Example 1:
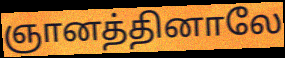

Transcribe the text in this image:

ஞானத்தினாலே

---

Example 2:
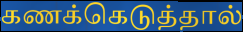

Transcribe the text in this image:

கணக்கெடுத்தால்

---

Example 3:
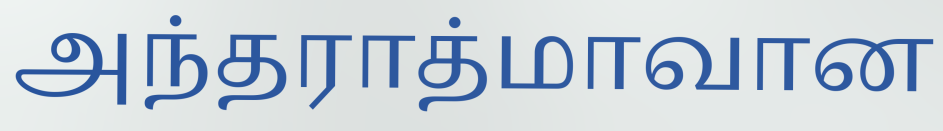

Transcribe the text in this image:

அந்தராத்மாவான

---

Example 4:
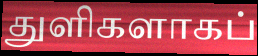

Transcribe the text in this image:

துளிகளாகப்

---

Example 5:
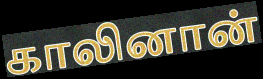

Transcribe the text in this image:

காலினான்